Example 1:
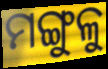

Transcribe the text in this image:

ମଙ୍ଗୁଳୁ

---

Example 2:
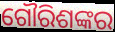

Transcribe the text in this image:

ଗୌରିଶଙ୍କର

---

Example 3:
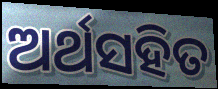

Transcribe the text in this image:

ଅର୍ଥସହିତ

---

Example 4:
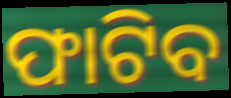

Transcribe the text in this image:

ଫାଟିବ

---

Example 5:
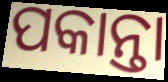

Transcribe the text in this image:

ପକାନ୍ତା